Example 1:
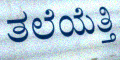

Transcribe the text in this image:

ತಲೆಯೆತ್ತಿ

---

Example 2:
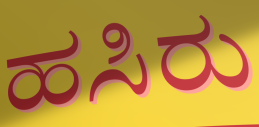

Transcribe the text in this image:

ಹಸಿರು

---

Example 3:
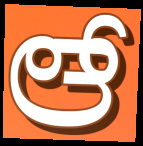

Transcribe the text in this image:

ಆ್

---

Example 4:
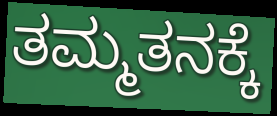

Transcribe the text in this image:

ತಮ್ಮತನಕ್ಕೆ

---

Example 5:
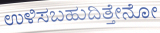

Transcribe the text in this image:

ಉಳಿಸಬಹುದಿತ್ತೇನೋ